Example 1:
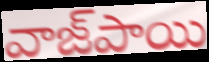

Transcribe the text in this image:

వాజ్‌పాయి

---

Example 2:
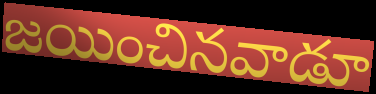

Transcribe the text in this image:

జయించినవాడూ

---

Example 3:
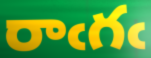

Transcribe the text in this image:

రాఁగఁ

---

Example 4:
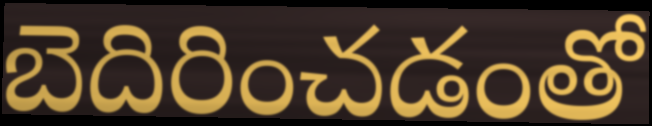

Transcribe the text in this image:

బెదిరించడంతో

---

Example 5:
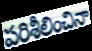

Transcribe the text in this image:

పరిశీలించినా